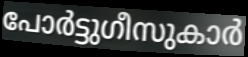
പോർട്ടുഗീസുകാർ